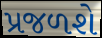
પ્રજળશે